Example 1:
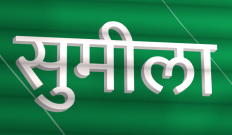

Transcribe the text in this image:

सुमीला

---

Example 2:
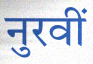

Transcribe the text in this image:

नुरवीं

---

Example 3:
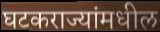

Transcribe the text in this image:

घटकराज्यांमधील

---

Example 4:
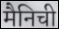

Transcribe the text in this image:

मैनिची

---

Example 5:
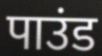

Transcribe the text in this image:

पाउंड